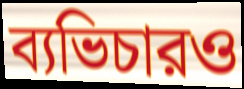
ব্যভিচারও